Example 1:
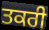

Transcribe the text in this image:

ਤਕਰੀ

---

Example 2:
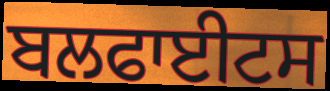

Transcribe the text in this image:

ਬਲਫਾਈਟਸ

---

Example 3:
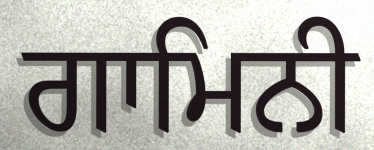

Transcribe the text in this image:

ਗਾਮਿਨੀ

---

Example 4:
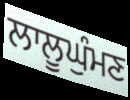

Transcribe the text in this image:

ਲਾਲੂਘੁੰਮਣ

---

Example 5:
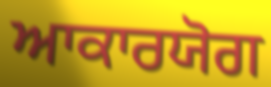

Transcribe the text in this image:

ਆਕਾਰਯੋਗ